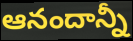
ఆనందాన్నీ